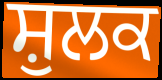
ਸ਼ੁਲਕ